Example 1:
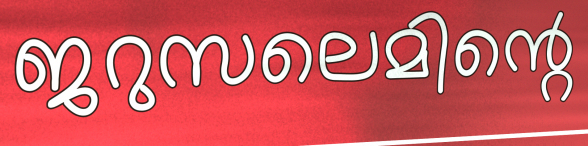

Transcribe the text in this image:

ജറുസലെമിന്റെ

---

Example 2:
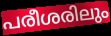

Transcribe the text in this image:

പരീശരിലും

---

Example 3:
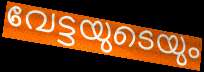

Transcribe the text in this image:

വേട്ടയുടെയും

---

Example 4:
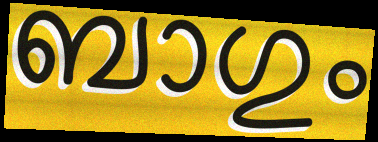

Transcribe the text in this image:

ബാഗും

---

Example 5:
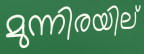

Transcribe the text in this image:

മുന്നിരയില്